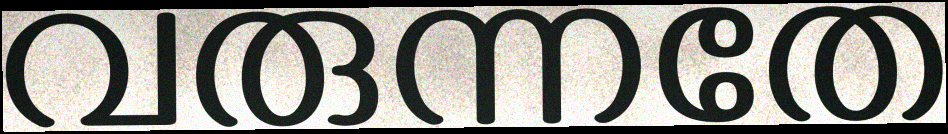
വരുന്നതേ